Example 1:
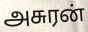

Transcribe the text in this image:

அசுரன்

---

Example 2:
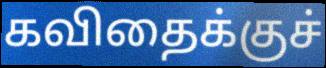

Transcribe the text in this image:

கவிதைக்குச்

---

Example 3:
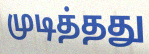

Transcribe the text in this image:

முடித்தது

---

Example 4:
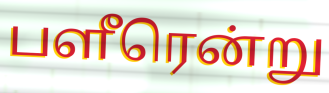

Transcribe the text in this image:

பளீரென்று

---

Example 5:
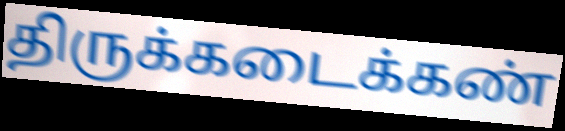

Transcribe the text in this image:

திருக்கடைக்கண்